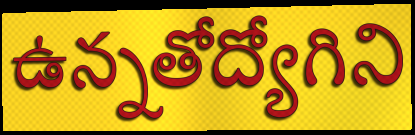
ఉన్నతోద్యోగిని